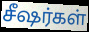
சீஷர்கள்